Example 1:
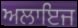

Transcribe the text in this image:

ਅਲਾਇਜ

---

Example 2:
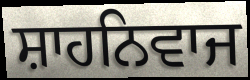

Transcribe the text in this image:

ਸ਼ਾਹਨਿਵਾਜ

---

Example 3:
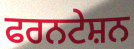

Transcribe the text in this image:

ਫਰਨਟੇਸ਼ਨ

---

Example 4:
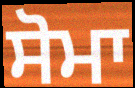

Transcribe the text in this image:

ਸੋਮਾ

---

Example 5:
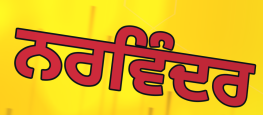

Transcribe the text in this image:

ਨਰਵਿੰਦਰ